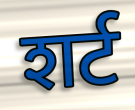
शर्ट